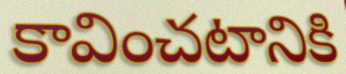
కావించటానికి